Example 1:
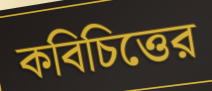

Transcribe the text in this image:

কবিচিত্তের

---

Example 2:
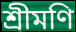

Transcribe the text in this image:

শ্রীমণি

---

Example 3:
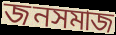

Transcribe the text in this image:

জনসমাজ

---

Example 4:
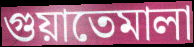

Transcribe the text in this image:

গুয়াতেমালা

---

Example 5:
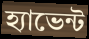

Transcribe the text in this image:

হ্যাভেন্ট